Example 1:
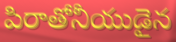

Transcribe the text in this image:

పిరాతోనీయుడైన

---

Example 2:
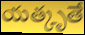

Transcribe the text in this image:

యత్కృతే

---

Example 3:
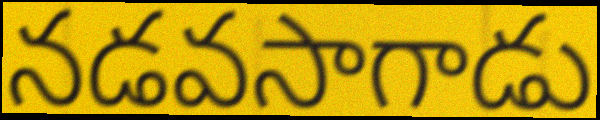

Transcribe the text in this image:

నడవసాగాడు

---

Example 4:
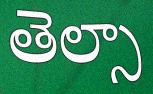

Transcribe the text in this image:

తెల్సా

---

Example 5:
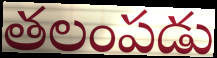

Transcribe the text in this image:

తలంపడు